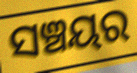
ସଞ୍ଚୟର